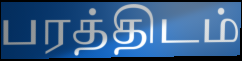
பரத்திடம்